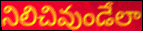
నిలిచివుండేలా